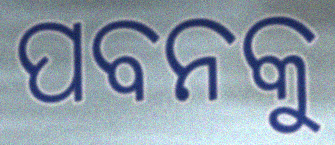
ପବନକୁ